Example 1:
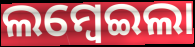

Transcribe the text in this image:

ଲମ୍ବେଇଲା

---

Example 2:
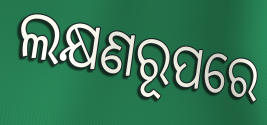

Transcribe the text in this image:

ଲକ୍ଷଣରୂପରେ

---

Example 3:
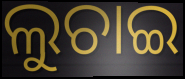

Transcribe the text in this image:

ଲୁଚାଇ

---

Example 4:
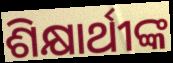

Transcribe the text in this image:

ଶିକ୍ଷାର୍ଥୀଙ୍କ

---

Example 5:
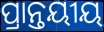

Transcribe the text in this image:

ପ୍ରାନ୍ତୟୀୟ